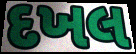
દખલ